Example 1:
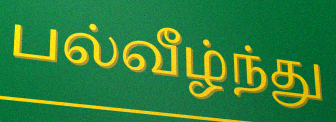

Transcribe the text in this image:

பல்வீழ்ந்து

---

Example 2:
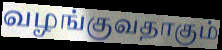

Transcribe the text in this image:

வழங்குவதாகும்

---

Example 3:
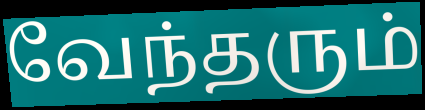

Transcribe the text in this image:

வேந்தரும்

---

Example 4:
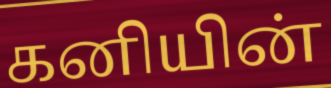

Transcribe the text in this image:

கனியின்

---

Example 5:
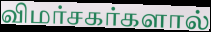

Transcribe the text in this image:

விமர்சகர்களால்